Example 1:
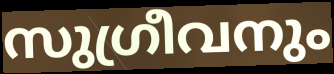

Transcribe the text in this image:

സുഗ്രീവനും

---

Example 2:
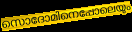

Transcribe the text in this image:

സൊദോമിനെപ്പോലെയും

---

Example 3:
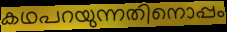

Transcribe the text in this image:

കഥപറയുന്നതിനൊപ്പം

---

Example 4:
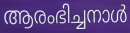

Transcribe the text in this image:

ആരംഭിച്ചനാൾ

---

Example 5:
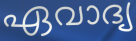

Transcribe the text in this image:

ഏവാദ്യ